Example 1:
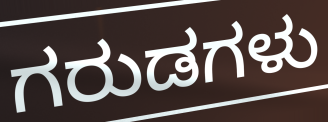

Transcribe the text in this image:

ಗರುಡಗಳು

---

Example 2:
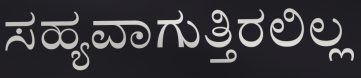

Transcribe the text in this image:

ಸಹ್ಯವಾಗುತ್ತಿರಲಿಲ್ಲ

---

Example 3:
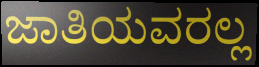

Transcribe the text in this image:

ಜಾತಿಯವರಲ್ಲ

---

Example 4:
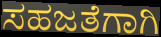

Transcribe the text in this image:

ಸಹಜತೆಗಾಗಿ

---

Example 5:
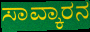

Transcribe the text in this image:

ಸಾವ್ಕಾರನ